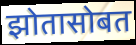
झोतासोबत